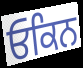
ਓਕਿਨ